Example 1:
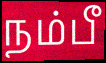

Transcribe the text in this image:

நம்பீ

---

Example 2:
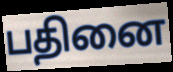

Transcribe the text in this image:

பதினை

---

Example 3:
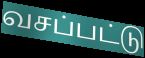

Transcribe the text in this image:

வசப்பட்டு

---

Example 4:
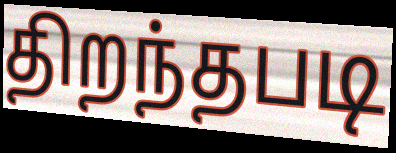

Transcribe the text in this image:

திறந்தபடி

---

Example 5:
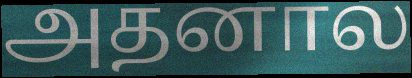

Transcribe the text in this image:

அதனால